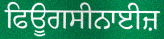
ਫਿਊਗਸੀਨਾਈਜ਼